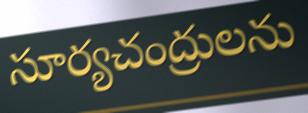
సూర్యచంద్రులను